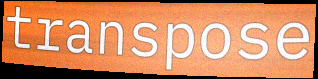
transpose